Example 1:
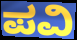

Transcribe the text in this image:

ಪವಿ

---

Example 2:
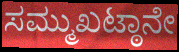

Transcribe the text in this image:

ಸಮ್ಮುಖಟ್ಠಾನೇ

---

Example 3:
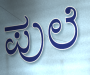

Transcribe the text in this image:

ಪುಲೆ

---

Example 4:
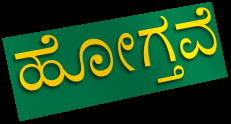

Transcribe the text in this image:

ಹೋಗ್ತವೆ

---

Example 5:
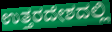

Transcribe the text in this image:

ಉತ್ತರದೇಶದಲ್ಲಿ